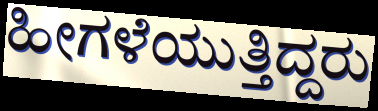
ಹೀಗಳೆಯುತ್ತಿದ್ದರು